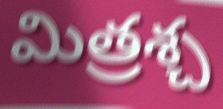
మిత్రశ్చ